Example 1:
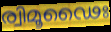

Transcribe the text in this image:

ര്വിമൂഢൈഃ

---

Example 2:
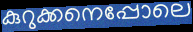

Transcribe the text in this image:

കുറുക്കനെപ്പോലെ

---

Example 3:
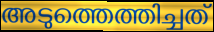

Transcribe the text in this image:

അടുത്തെത്തിച്ചത്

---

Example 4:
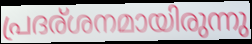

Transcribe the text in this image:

പ്രദര്ശനമായിരുന്നു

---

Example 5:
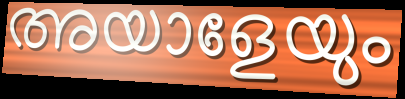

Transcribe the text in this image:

അയാളേയും